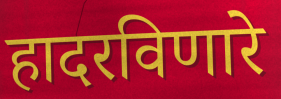
हादरविणारे